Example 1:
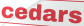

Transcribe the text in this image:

cedars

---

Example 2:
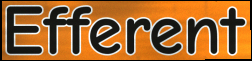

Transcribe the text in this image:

Efferent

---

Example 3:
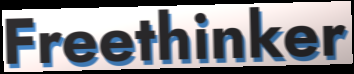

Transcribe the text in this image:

Freethinker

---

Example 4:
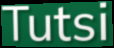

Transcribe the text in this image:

Tutsi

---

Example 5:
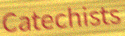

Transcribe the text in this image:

Catechists